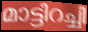
മാട്ടിറച്ചി